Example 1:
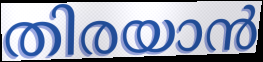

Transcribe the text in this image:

തിരയാൻ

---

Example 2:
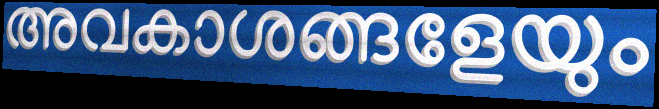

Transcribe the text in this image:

അവകാശങ്ങളേയും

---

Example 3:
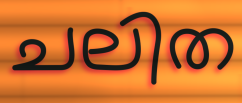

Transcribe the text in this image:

ചലിത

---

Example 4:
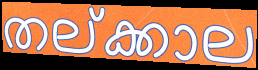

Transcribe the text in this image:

തല്ക്കാല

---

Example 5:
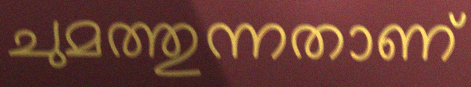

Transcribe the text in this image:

ചുമത്തുന്നതാണ്